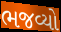
ભજવ્યો